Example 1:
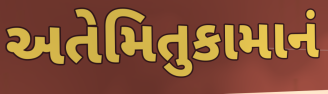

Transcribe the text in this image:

અતેમિતુકામાનં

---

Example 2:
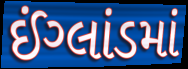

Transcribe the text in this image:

ઈંગ્લાંડમાં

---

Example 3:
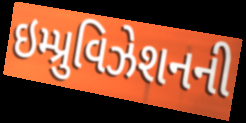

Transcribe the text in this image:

ઇમ્પ્રુવિઝેશનની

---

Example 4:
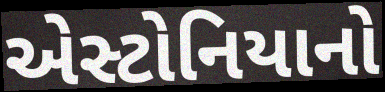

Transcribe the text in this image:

એસ્ટોનિયાનો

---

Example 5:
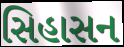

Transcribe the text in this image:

સિહાસન